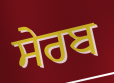
ਸੇਰਬ